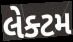
લેક્ટમ